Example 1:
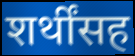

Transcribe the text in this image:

शर्थींसह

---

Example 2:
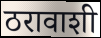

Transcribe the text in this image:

ठरावाशी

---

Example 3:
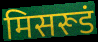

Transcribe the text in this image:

मिसरूडं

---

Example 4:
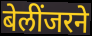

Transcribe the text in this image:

बेलींजरने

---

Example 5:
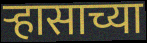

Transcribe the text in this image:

ऱ्हासाच्या